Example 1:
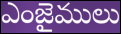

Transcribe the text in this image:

ఎంజైములు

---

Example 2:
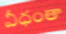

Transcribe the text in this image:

వీధంతా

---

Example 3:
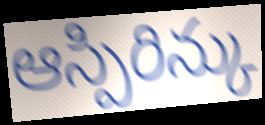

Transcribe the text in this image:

ఆస్పిరిన్కు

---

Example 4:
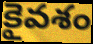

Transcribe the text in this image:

కైవశం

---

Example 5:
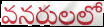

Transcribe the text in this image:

వనరులలో